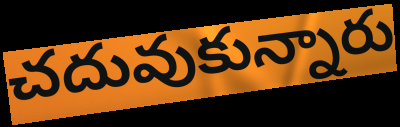
చదువుకున్నారు